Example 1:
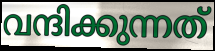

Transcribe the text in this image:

വന്ദിക്കുന്നത്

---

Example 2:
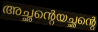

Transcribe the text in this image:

അച്ഛന്റെയച്ഛന്റെ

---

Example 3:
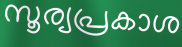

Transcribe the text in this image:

സൂര്യപ്രകാശ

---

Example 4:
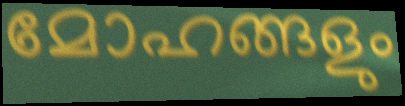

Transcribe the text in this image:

മോഹങ്ങളും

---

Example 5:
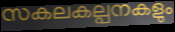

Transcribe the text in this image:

സകലകല്പനകളും